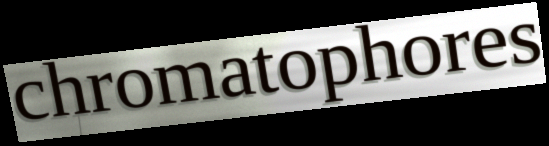
chromatophores